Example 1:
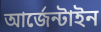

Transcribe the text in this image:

আর্জেন্টাইন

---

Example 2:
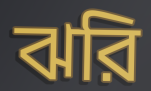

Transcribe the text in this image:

ঝরি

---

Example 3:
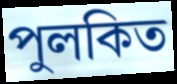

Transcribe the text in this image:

পুলকিত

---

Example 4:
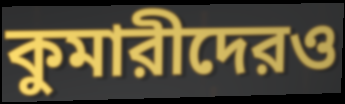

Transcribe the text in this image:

কুমারীদেরও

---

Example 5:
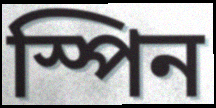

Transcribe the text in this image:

স্পিন